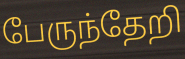
பேருந்தேறி